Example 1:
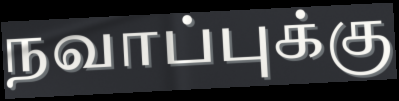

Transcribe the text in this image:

நவாப்புக்கு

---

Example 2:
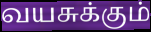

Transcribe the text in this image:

வயசுக்கும்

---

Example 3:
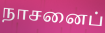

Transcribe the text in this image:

நாசனைப்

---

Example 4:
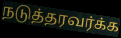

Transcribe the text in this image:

நடுத்தரவர்க்க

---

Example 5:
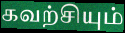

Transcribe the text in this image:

கவற்சியும்